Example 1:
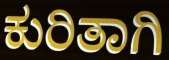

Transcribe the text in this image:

ಕುರಿತಾಗಿ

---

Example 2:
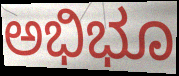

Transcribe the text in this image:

ಅಭಿಭೂ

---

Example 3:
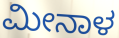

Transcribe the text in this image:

ಮೀನಾಳ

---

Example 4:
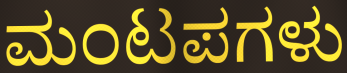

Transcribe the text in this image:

ಮಂಟಪಗಳು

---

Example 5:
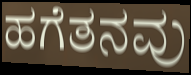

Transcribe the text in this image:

ಹಗೆತನವು